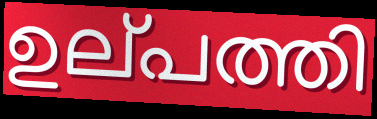
ഉല്‌പത്തി